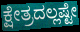
ಕ್ಷೇತ್ರದಲ್ಲಷ್ಟೇ